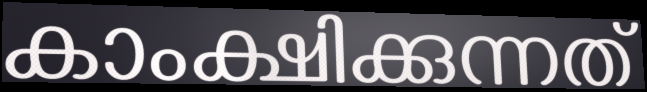
കാംക്ഷിക്കുന്നത്